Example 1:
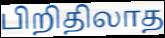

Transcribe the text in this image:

பிறிதிலாத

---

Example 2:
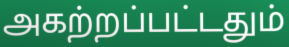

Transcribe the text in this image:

அகற்றப்பட்டதும்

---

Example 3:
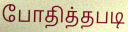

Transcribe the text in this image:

போதித்தபடி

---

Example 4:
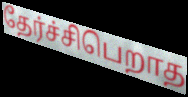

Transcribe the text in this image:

தேர்ச்சிபெறாத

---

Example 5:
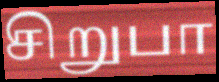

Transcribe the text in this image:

சிறுபா